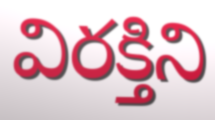
విరక్తిని